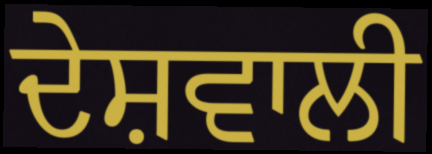
ਦੇਸ਼ਵਾਲੀ